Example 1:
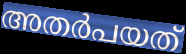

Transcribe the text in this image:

അതർപയത്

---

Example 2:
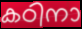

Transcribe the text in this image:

കഠിനാ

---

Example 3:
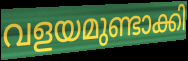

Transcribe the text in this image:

വളയമുണ്ടാക്കി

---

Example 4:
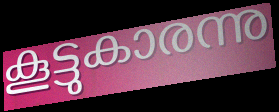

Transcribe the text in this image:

കൂട്ടുകാരന്നു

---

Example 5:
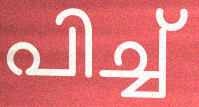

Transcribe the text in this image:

പിച്ച്